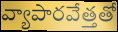
వ్యాపారవేత్తతో